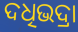
ଦଧିଭଦ୍ରା